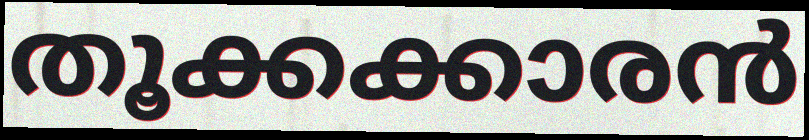
തൂക്കക്കാരൻ